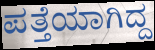
ಪತ್ತೆಯಾಗಿದ್ದ